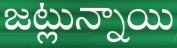
జట్లున్నాయి